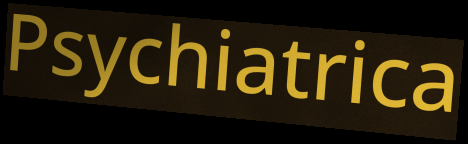
Psychiatrica